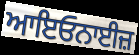
ਆਇਓਨਾਈਜ਼